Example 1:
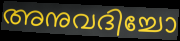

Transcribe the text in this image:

അനുവദിച്ചോ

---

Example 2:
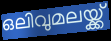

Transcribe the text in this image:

ഒലിവുമലയ്ക്ക്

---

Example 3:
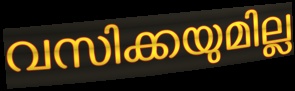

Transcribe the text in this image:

വസിക്കയുമില്ല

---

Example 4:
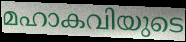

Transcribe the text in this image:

മഹാകവിയുടെ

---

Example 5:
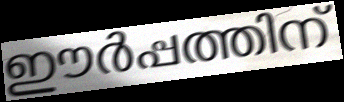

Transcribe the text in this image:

ഈർപ്പത്തിന്